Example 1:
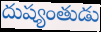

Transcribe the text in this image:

దుష్యంతుడు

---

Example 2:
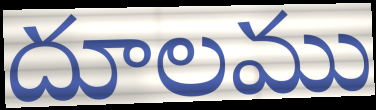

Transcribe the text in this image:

దూలము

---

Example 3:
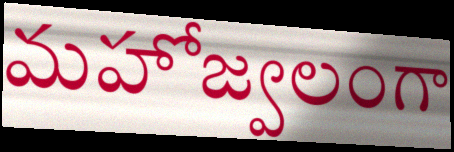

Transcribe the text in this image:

మహోజ్వలంగా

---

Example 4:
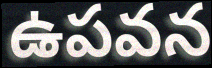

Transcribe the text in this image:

ఉపవన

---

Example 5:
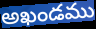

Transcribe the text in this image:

అఖండము